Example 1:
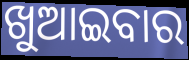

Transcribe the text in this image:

ଖୁଆଇବାର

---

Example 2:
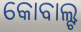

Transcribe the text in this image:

କୋବାଲ୍ଟ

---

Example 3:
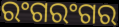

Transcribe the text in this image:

ରଂଗରଂଗର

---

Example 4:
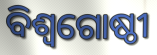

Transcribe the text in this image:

ବିଶ୍ୱଗୋଷ୍ଠୀ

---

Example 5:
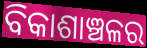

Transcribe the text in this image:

ବିକାଶାଞ୍ଚଳର